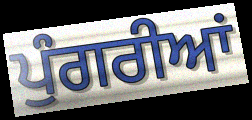
ਪੁੰਗਰੀਆਂ